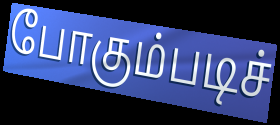
போகும்படிச்